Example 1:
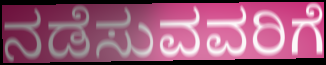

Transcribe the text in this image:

ನಡೆಸುವವರಿಗೆ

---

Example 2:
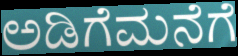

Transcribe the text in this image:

ಅಡಿಗೆಮನೆಗೆ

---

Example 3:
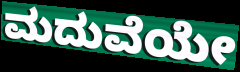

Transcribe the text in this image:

ಮದುವೆಯೇ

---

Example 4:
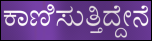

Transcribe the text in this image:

ಕಾಣಿಸುತ್ತಿದ್ದೇನೆ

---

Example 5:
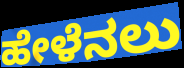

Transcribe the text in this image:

ಹೇಳೆನಲು